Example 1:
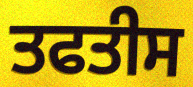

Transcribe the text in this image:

ਤਫਤੀਸ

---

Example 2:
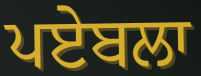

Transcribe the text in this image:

ਪਏਬਲਾ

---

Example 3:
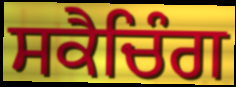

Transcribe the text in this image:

ਸਕੈਚਿੰਗ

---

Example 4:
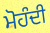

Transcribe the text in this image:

ਮੋਹੰਦੀ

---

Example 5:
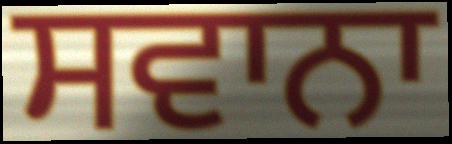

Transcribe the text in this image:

ਸਵਾਨਾ